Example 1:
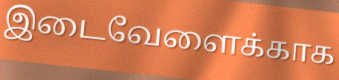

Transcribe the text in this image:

இடைவேளைக்காக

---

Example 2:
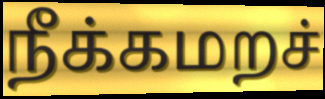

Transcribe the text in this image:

நீக்கமறச்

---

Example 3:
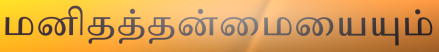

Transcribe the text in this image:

மனிதத்தன்மையையும்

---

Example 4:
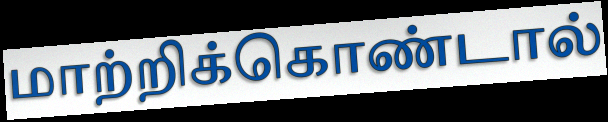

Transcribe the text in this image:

மாற்றிக்கொண்டால்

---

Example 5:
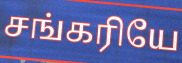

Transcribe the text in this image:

சங்கரியே